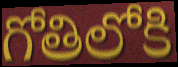
గోతిలోకి